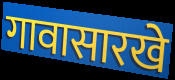
गावासारखे